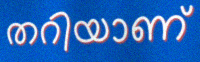
തറിയാണ്